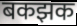
बकझक